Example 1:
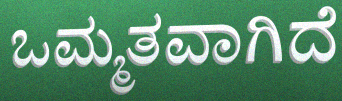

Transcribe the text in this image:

ಒಮ್ಮತವಾಗಿದೆ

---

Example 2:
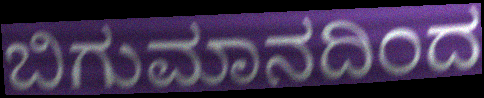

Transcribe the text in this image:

ಬಿಗುಮಾನದಿಂದ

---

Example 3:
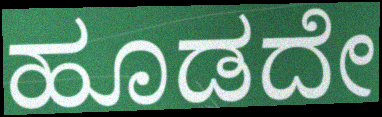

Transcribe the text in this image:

ಹೂಡದೇ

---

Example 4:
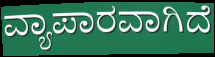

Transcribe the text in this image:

ವ್ಯಾಪಾರವಾಗಿದೆ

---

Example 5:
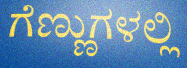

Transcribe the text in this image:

ಗೆಣ್ಣುಗಳಲ್ಲಿ